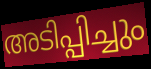
അടിപ്പിച്ചും